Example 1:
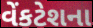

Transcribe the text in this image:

વેંકટેશના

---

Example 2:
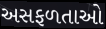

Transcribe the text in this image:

અસફળતાઓ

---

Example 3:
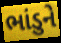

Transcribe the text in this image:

ભાંડુને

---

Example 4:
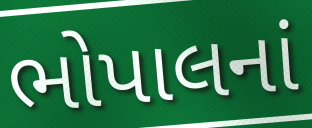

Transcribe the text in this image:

ભોપાલનાં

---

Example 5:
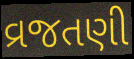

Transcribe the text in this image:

વ્રજતણી